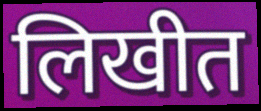
लिखीत